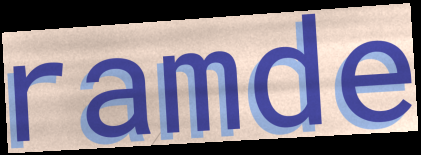
ramde